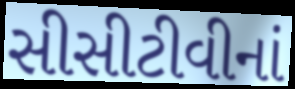
સીસીટીવીનાં